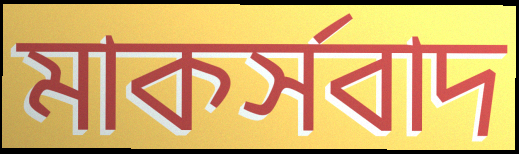
মাকর্সবাদ